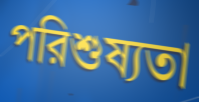
পরিশুষ্যতা